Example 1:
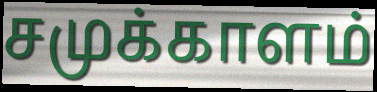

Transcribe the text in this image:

சமுக்காளம்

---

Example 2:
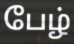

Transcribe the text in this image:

பேழ்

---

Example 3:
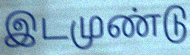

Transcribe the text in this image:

இடமுண்டு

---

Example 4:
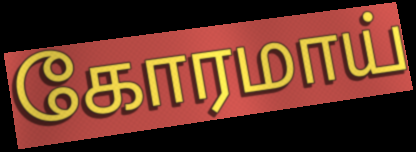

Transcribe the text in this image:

கோரமாய்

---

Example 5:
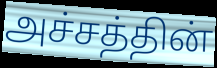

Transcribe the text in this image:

அச்சத்தின்